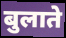
बुलाते